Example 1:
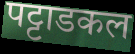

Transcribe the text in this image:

पट्टाडकल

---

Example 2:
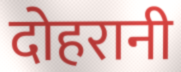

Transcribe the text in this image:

दोहरानी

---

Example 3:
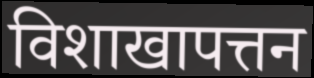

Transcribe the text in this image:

विशाखापत्तन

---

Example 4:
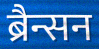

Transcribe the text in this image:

ब्रैन्सन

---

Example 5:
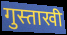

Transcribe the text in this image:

गुस्ताखी